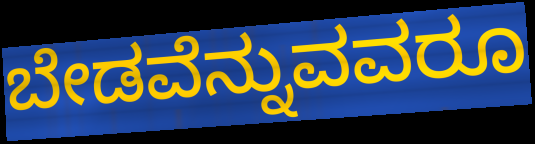
ಬೇಡವೆನ್ನುವವರೂ